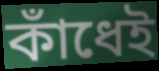
কাঁধেই